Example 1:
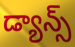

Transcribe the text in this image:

డ్యాన్స్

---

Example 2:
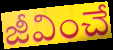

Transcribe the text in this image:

జీవించే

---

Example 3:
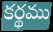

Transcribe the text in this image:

కర్థము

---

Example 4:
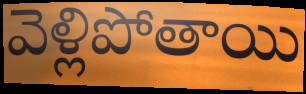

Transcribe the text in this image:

వెళ్లిపోతాయి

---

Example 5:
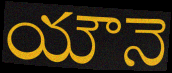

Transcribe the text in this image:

యౌనె